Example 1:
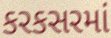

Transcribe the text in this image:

કરકસરમાં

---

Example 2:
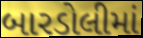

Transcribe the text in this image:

બારડોલીમાં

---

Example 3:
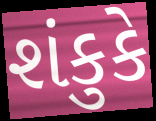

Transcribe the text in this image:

શંકુકે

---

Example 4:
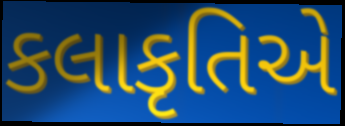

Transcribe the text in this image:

કલાકૃતિએ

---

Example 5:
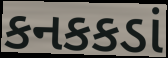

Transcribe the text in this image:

કનકકડાં